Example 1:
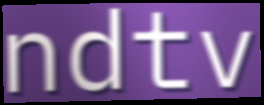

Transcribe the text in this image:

ndtv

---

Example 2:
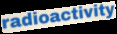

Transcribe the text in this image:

radioactivity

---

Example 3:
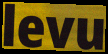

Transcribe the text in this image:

levu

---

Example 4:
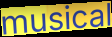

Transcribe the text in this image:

musical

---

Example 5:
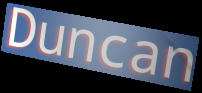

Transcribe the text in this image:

Duncan